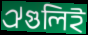
ঐগুলিই